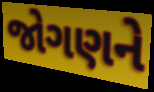
જોગણને